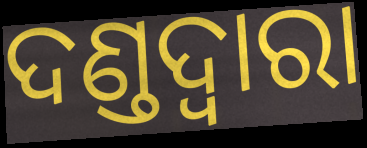
ଦଣ୍ଡଦ୍ୱାରା